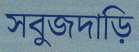
সবুজদাড়ি